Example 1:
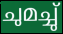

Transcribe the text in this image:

ചുമച്ചു്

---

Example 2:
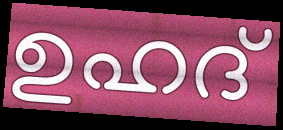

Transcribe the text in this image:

ഉഹദ്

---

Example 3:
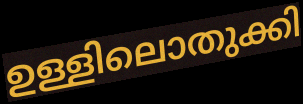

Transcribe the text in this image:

ഉള്ളിലൊതുക്കി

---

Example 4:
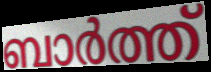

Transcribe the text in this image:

ബാർത്ത്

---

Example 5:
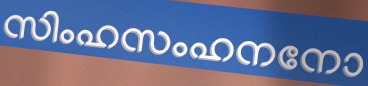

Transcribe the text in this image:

സിംഹസംഹനനോ